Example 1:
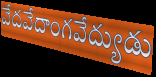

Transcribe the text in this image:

వేదవేదాంగవేద్యుడు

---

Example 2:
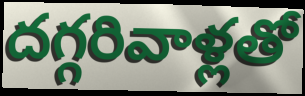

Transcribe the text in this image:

దగ్గరివాళ్లతో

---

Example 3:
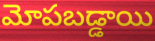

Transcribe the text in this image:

మోపబడ్డాయి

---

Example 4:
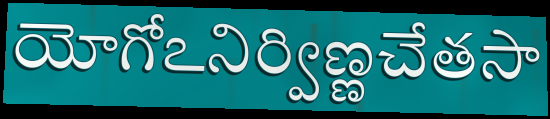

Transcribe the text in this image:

యోగోఽనిర్విణ్ణచేతసా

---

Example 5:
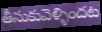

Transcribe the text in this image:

తీసుకువెళ్ళిందట